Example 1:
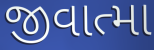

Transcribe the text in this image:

જીવાત્મા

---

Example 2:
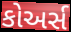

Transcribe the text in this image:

કોઅર્સ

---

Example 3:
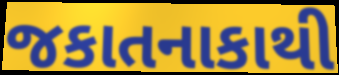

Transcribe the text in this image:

જકાતનાકાથી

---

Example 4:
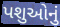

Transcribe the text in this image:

પશુઓનું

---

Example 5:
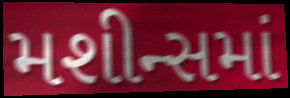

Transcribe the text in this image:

મશીન્સમાં